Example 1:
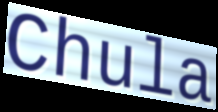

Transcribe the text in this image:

Chula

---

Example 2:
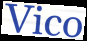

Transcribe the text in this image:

Vico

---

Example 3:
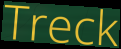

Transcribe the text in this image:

Treck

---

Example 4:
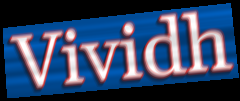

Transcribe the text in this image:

Vividh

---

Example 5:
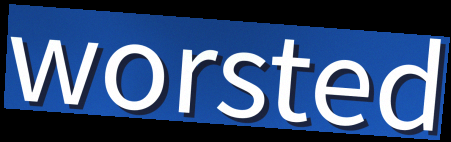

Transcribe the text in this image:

worsted